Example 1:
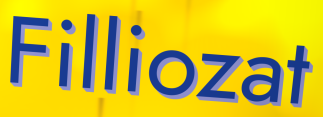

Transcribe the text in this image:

Filliozat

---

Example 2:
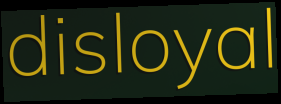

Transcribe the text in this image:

disloyal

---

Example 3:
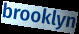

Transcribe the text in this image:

brooklyn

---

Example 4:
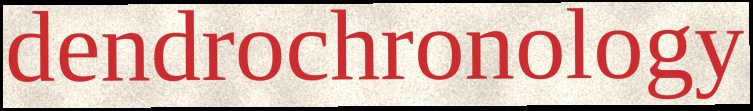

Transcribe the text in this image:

dendrochronology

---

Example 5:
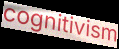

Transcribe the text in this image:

cognitivism